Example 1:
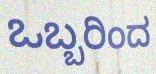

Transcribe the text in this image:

ಒಬ್ಬರಿಂದ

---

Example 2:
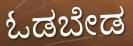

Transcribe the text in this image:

ಓಡಬೇಡ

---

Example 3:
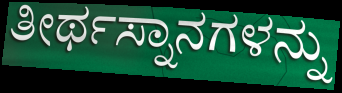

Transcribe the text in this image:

ತೀರ್ಥಸ್ನಾನಗಳನ್ನು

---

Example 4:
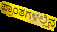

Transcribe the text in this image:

ಪ್ರಾಂತಗಳಲ್ಲಿನ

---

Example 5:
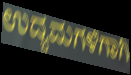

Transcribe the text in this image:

ಉದ್ಯಮಗಳಿಗಾಗಿ